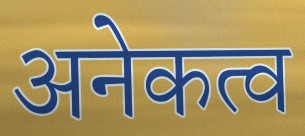
अनेकत्व